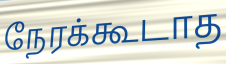
நேரக்கூடாத